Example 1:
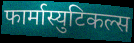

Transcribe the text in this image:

फार्मास्युटिकल्स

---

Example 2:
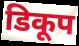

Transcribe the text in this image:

डिकूप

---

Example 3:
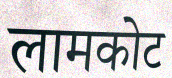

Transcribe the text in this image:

लामकोट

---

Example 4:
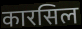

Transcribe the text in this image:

कारसिल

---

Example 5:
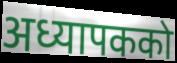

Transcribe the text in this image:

अध्यापकको